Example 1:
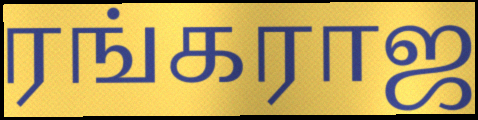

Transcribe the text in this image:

ரங்கராஜ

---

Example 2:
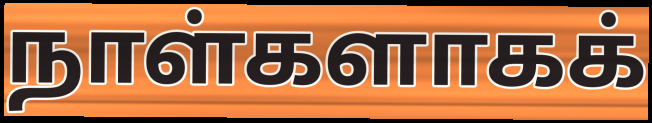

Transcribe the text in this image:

நாள்களாகக்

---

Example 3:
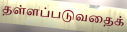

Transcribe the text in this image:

தள்ளப்படுவதைக்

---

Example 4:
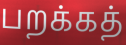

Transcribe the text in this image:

பறக்கத்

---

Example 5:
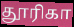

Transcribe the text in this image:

தூரிகா